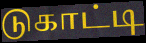
டுகாட்டி